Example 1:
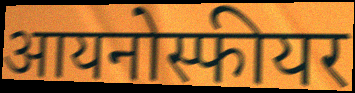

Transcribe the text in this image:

आयनोस्फीयर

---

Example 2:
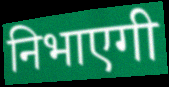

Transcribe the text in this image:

निभाएगी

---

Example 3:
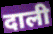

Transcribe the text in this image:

दाली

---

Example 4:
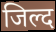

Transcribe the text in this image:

जिल्द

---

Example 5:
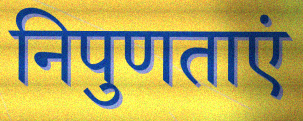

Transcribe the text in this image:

निपुणताएं